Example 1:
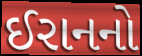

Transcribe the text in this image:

ઈરાનનો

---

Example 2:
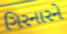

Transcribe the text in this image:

ગિરનારને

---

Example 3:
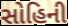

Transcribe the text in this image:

સોહિની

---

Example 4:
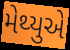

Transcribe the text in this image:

મેથ્યુએ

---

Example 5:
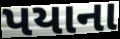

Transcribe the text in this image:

પયાના